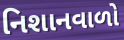
નિશાનવાળો